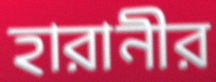
হারানীর